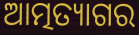
ଆତ୍ମତ୍ୟାଗର